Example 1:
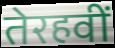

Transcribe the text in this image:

तेरहवीं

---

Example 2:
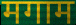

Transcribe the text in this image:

मगाम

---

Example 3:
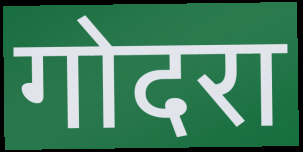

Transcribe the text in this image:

गोदरा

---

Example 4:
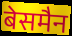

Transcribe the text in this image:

बेसमैन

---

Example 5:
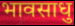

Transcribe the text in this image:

भावसाधु